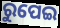
ରୁପେଇ